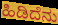
ಹಿಡಿದೆನು